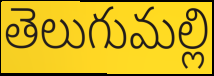
తెలుగుమల్లి